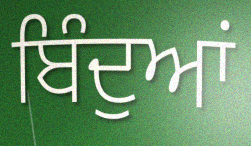
ਬਿੰਦੁਆਂ